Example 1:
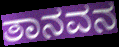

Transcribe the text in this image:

ತಾನವನ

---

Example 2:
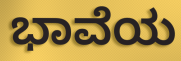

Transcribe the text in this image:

ಭಾವೆಯ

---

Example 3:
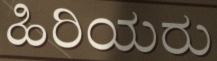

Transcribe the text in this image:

ಹಿರಿಯರು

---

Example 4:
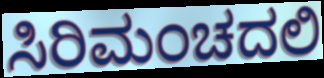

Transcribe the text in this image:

ಸಿರಿಮಂಚದಲಿ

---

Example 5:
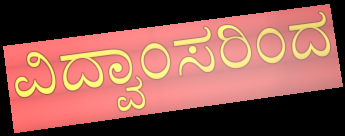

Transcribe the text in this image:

ವಿದ್ವಾಂಸರಿಂದ